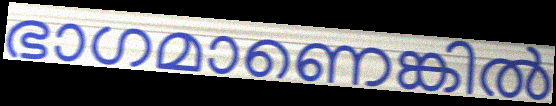
ഭാഗമാണെങ്കിൽ